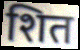
शित